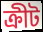
ক্রীট